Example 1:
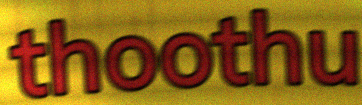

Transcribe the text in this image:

thoothu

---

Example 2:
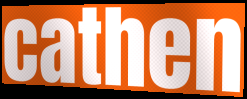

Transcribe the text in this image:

cathen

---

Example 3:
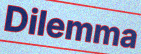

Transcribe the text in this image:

Dilemma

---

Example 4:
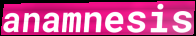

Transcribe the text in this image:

anamnesis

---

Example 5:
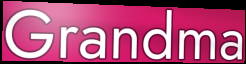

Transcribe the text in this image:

Grandma